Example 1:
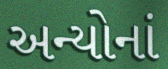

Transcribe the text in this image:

અન્યોનાં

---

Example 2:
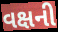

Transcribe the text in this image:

વક્ષની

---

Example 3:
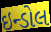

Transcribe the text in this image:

ઇન્ડોલ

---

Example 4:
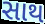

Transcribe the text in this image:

સાથ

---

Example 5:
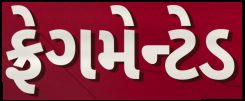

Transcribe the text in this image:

ફ્રેગમેન્ટેડ